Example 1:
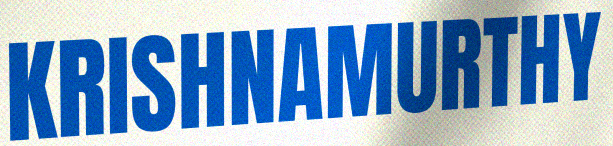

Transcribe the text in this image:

KRISHNAMURTHY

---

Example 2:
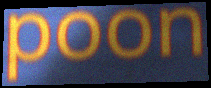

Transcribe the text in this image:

poon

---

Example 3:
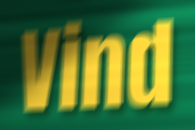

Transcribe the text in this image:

Vind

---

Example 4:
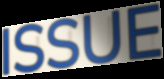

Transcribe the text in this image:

ISSUE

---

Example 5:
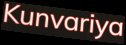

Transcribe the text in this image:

Kunvariya